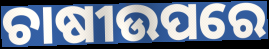
ଚାଷୀଉପରେ